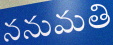
ననుమతి